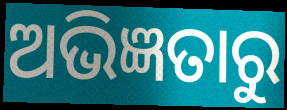
ଅଭିଜ୍ଞତାରୁ